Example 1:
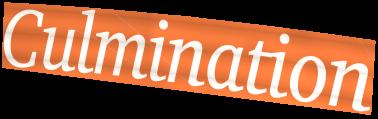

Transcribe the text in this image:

Culmination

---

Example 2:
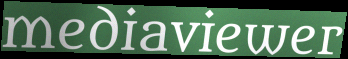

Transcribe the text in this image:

mediaviewer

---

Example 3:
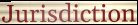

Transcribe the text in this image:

Jurisdiction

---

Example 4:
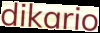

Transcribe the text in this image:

dikario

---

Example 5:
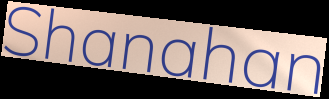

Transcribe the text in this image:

Shanahan